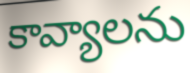
కావ్యాలను